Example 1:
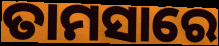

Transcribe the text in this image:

ତାମସାରେ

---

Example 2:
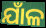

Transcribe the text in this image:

ଯାଁଳ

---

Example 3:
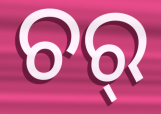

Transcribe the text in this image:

ଚର୍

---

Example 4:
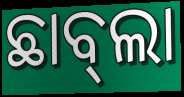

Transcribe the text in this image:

ଛାବ୍‍ଲା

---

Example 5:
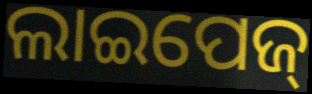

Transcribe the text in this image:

ଲାଇପେଜ୍